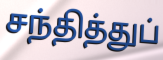
சந்தித்துப்